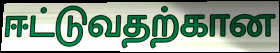
ஈட்டுவதற்கான